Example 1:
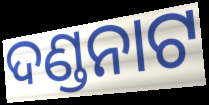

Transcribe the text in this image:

ଦଣ୍ଡନାଟ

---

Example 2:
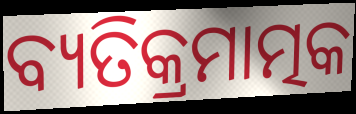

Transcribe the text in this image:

ବ୍ୟତିକ୍ରମାତ୍ମକ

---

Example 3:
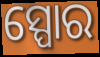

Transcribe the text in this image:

ସ୍ପୋର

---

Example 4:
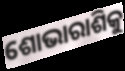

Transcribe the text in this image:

ଶୋଭାରାଶିକୁ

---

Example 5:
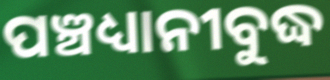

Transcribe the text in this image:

ପଞ୍ଚଧ୍ୟାନୀବୁଦ୍ଧ